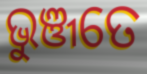
ଭୁଞ୍ଜତେ